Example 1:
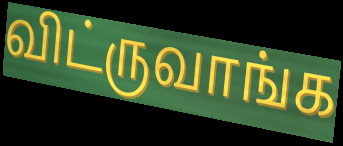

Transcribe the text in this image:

விட்ருவாங்க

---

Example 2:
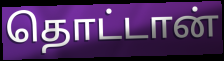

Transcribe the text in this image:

தொட்டான்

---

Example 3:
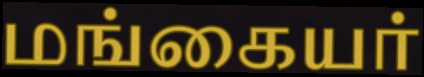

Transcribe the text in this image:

மங்கையர்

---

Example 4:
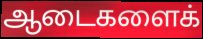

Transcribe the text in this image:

ஆடைகளைக்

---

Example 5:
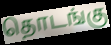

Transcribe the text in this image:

தொடங்கு